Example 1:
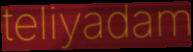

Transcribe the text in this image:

teliyadam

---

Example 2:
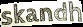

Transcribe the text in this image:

skandh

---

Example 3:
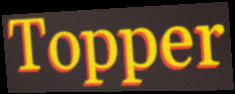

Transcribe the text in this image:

Topper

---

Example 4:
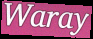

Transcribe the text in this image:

Waray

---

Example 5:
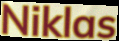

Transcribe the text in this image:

Niklas